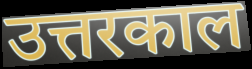
उत्तरकाल